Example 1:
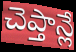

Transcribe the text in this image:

చెప్తాన్లే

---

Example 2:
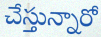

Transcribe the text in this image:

చేస్తున్నారో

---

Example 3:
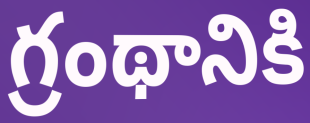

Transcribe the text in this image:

గ్రంథానికి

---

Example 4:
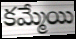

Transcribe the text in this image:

కమ్మేయి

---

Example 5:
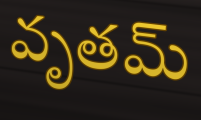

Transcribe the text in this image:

వృతమ్